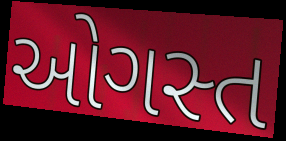
ઓગસ્ત